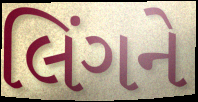
લિંગને